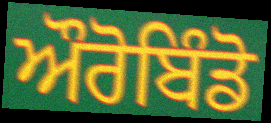
ਔਰੋਬਿੰਡੋ